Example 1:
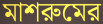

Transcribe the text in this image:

মাশরুমের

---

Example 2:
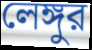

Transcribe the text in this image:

লেঙ্গুর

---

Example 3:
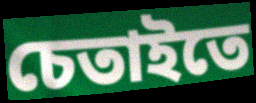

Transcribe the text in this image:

চেতাইতে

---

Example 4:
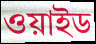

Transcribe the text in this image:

ওয়াইড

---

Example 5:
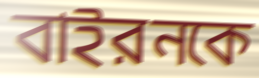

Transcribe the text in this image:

বাইরনকে